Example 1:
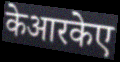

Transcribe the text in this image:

केआरकेए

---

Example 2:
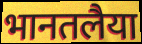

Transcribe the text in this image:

भानतलैया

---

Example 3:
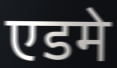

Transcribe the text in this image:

एडमे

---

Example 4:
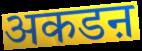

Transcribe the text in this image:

अकडऩ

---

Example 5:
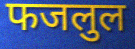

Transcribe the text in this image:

फजलुल